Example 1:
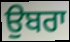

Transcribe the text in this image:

ਉਬਰਾ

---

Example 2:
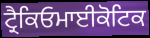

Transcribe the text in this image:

ਟ੍ਰੈਕਿਓਮਾਈਕੋਟਿਕ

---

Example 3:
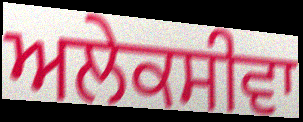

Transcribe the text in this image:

ਅਲੇਕਸੀਵਾ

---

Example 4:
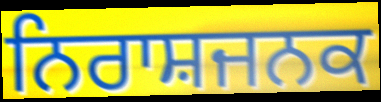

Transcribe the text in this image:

ਨਿਰਾਸ਼ਜਨਕ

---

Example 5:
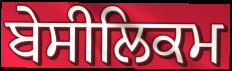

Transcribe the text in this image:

ਬੇਸੀਲਿਕਮ